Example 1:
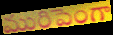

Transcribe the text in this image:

మురిపెంగా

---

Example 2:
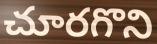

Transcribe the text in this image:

చూరగొని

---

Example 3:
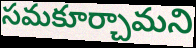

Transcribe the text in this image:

సమకూర్చామని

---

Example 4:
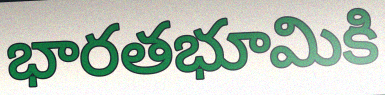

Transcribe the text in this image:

భారతభూమికి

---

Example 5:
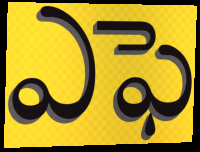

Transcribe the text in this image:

ఎఫె